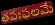
తపఃఫలమే